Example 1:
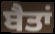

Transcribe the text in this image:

ਬੈਤਾਂ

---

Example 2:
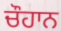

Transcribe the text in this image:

ਚੌਹਾਨ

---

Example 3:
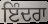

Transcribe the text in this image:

ਇੰਦਰਾ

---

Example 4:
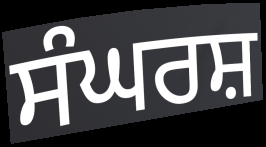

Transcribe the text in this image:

ਸੰਘਰਸ਼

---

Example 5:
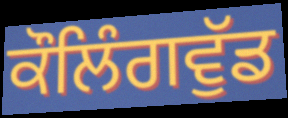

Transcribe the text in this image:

ਕੌਲਿੰਗਵੁੱਡ